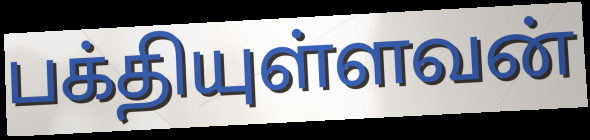
பக்தியுள்ளவன்